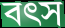
বৎস